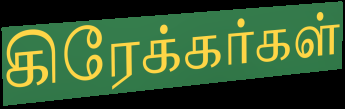
கிரேக்கர்கள்